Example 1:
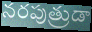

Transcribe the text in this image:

నరపుత్రుడా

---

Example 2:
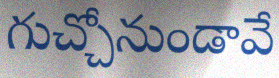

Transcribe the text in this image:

గుచ్చోనుండావే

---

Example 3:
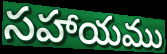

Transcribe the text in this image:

సహాయము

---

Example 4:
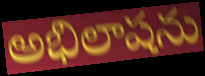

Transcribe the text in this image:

అభిలాషను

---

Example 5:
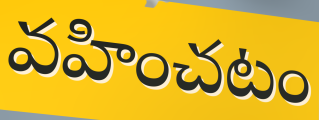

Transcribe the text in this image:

వహించటం